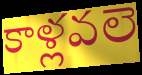
కాళ్లవలె